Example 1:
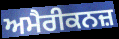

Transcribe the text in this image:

ਅਮੈਰੀਕਨਜ਼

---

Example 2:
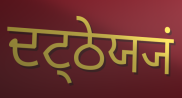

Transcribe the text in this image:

ਦਟ੍ਠੇਯ੍ਯਂ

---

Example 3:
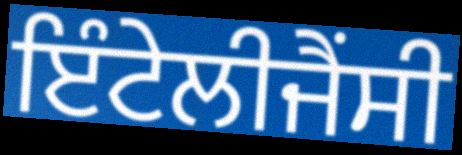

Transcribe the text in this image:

ਇੰਟੇਲੀਜੈਂਸੀ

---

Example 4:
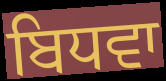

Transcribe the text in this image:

ਬਿਧਵਾ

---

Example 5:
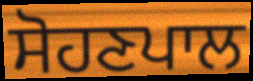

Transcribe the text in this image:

ਸੋਹਣਪਾਲ